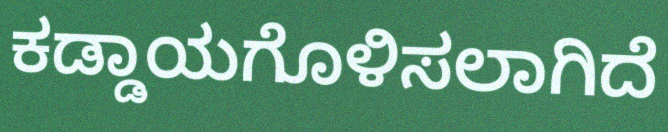
ಕಡ್ಡಾಯಗೊಳಿಸಲಾಗಿದೆ